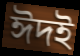
ঈদই